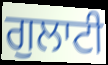
ਗੁਲਾਟੀ